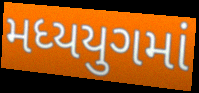
મધ્યયુગમાં